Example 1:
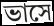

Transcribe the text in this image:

ভাসে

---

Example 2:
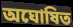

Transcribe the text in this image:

অঘোষিত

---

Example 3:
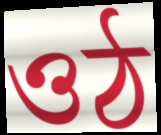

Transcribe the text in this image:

ওঠ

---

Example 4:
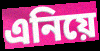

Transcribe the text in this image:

এনিয়ে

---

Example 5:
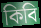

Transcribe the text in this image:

কিবি